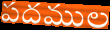
పదముల